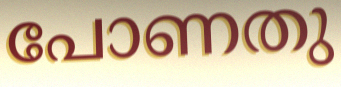
പോണതു